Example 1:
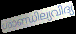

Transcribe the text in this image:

ശാണ്ഡില്യവിദ്യ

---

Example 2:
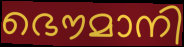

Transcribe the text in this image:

ഭൌമാനി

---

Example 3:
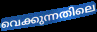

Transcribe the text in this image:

വെക്കുന്നതിലെ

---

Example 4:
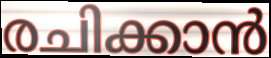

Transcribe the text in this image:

രചിക്കാൻ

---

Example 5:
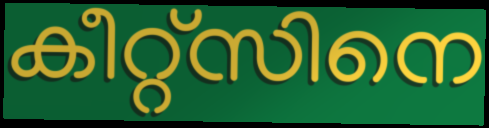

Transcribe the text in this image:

കീറ്റ്സിനെ